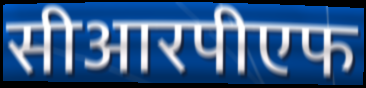
सीआरपीएफ